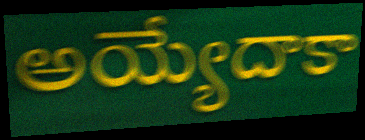
అయ్యేదాకా